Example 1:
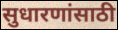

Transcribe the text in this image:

सुधारणांसाठी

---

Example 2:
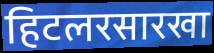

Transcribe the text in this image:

हिटलरसारखा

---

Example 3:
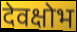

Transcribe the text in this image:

देवक्षोभ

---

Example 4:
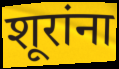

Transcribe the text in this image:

शूरांना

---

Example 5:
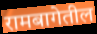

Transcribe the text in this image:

रामबागेतील